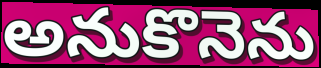
అనుకొనెను